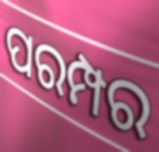
ପରମ୍ପର